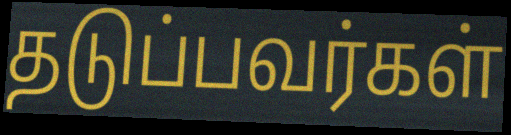
தடுப்பவர்கள்